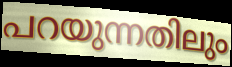
പറയുന്നതിലും